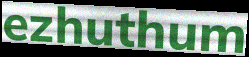
ezhuthum